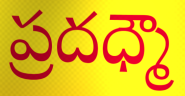
ప్రదధ్మౌ